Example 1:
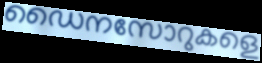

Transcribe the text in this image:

ഡൈനസോറുകളെ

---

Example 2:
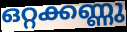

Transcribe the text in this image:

ഒറ്റക്കണ്ണു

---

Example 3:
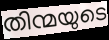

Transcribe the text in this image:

തിന്മയുടെ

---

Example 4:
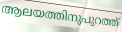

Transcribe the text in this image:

ആലയത്തിനുപുറത്ത്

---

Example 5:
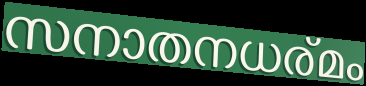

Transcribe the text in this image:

സനാതനധര്മം